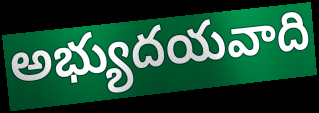
అభ్యుదయవాది